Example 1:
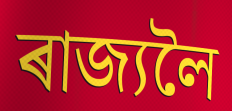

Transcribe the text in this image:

ৰাজ্যলৈ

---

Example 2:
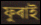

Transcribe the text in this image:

ফুৰাই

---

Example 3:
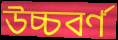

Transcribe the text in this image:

উচ্চবৰ্ণ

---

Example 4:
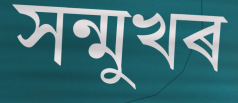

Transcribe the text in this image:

সন্মুখৰ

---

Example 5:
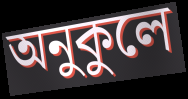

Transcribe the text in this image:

অনুকুলে